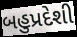
બહુપ્રદેશી